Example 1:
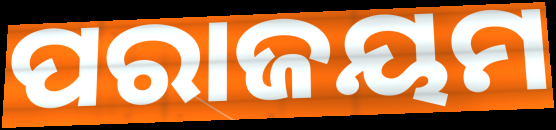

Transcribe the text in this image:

ପରାଜୟମ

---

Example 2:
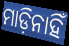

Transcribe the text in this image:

ମାଡ଼ିନାହିଁ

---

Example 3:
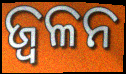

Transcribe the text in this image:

ଜ୍ଵଳନ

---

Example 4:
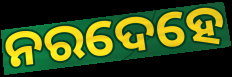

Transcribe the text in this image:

ନରଦେହେ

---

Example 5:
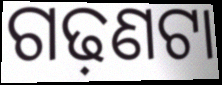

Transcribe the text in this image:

ଗଢ଼ଣଟା